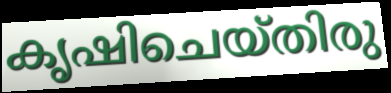
കൃഷിചെയ്തിരു